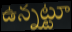
ఉన్నట్టూ